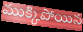
ముక్కిపోయిన